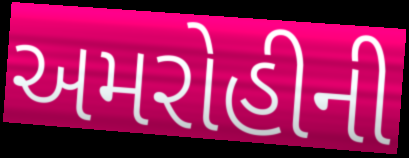
અમરોહીની